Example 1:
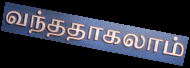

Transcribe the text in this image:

வந்ததாகலாம்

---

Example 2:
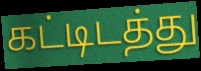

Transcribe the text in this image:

கட்டிடத்து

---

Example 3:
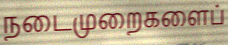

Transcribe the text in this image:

நடைமுறைகளைப்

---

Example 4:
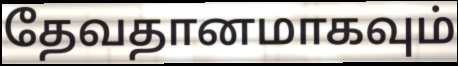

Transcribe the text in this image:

தேவதானமாகவும்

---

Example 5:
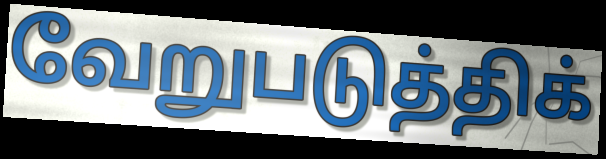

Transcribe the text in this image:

வேறுபடுத்திக்